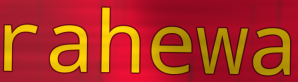
rahewa